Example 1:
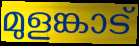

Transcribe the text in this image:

മുളങ്കാട്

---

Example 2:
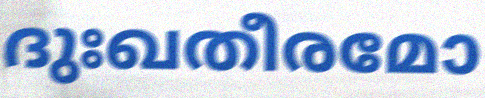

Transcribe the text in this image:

ദുഃഖതീരമോ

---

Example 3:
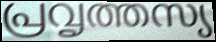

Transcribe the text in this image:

പ്രവൃത്തസ്യ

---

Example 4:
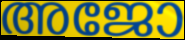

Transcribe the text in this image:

അജോ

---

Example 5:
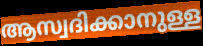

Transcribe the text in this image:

ആസ്വദിക്കാനുള്ള